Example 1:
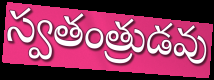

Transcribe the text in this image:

స్వతంత్రుడవు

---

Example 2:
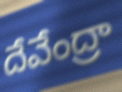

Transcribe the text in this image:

దేవేంద్రా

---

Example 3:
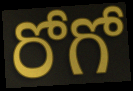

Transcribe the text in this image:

రోగో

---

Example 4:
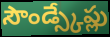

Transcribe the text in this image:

సౌండ్స్కేప్లు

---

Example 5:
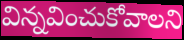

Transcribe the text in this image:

విన్నవించుకోవాలని